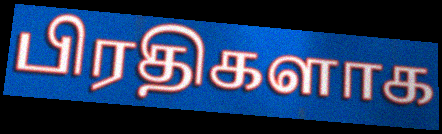
பிரதிகளாக